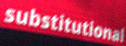
substitutional